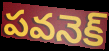
పవనెక్